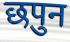
छपुन